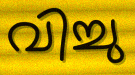
വിച്ചു